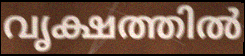
വൃക്ഷത്തിൽ